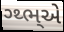
ગ્થ્ભ્એ